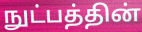
நுட்பத்தின்